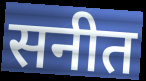
सनीत